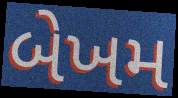
બેખમ